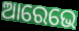
ଆରେଭେ